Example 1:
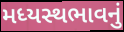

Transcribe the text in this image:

મધ્યસ્થભાવનું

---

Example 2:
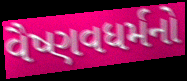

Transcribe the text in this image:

વૈષ્ણવધર્મનો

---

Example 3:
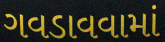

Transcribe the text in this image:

ગવડાવવામાં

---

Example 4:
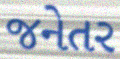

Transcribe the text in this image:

જનેતર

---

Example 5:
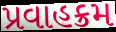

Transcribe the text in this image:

પ્રવાહક્રમ